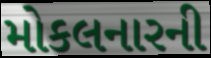
મોકલનારની